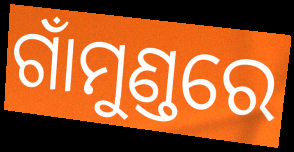
ଗାଁମୁଣ୍ଡରେ